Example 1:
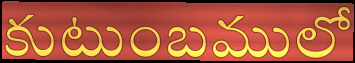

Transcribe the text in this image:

కుటుంబములో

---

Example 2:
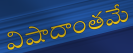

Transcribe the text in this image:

విషాదాంతమే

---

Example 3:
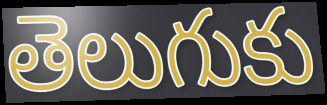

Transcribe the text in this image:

తెలుగుకు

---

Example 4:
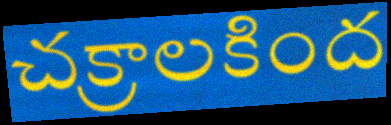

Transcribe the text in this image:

చక్రాలకింద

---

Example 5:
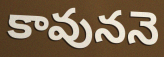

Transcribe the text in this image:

కావుననె